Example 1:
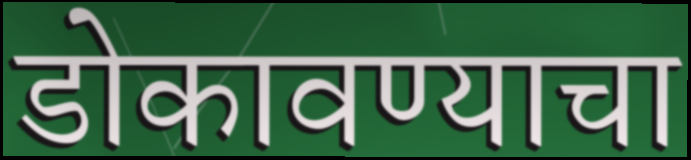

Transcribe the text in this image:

डोकावण्याचा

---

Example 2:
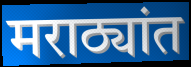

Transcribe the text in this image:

मराठ्यांत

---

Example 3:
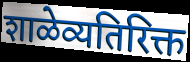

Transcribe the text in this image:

शाळेव्यतिरिक्त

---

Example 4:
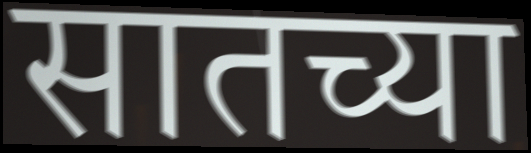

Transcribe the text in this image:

सातच्या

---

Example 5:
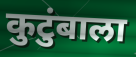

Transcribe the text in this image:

कुटुंबाला